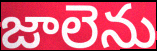
జాలెను